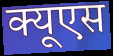
क्यूएस